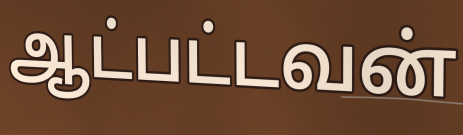
ஆட்பட்டவன்